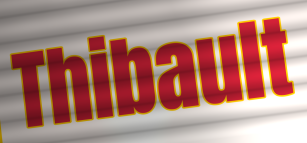
Thibault